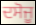
ਦਸੋਜੂ